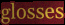
glosses